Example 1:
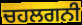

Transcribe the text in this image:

ਚਹਲਗਨੀ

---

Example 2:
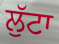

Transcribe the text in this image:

ਲੁੱਟਾ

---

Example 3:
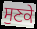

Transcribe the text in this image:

ਸੁਣਕੇ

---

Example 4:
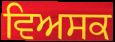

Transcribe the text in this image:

ਵਿਅਸਕ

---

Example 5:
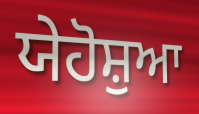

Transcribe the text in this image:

ਯੇਹੋਸ਼ੁਆ